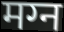
मग्‍न